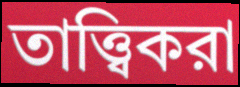
তাত্ত্বিকরা